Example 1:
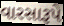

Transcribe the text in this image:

વારસારૂપે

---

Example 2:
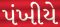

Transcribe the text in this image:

પંખીયે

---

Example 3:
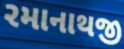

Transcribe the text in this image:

રમાનાથજી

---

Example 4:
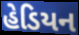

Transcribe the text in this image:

હેડિયન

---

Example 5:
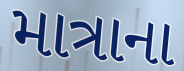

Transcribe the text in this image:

માત્રાના